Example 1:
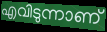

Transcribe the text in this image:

എവിടുന്നാണ്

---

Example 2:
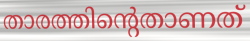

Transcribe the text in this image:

താരത്തിന്റെതാണത്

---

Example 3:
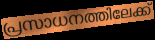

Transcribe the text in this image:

പ്രസാധനത്തിലേക്ക്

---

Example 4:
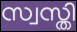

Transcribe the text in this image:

സ്വസ്തി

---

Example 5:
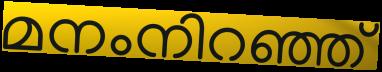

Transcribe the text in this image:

മനംനിറഞ്ഞ്